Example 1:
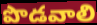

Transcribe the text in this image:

పొడవాలి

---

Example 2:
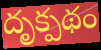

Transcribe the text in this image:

దృక్పథం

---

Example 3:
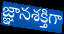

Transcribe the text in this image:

జ్ఞానశక్తిగా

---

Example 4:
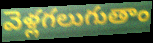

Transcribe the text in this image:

వెళ్లగలుగుతాం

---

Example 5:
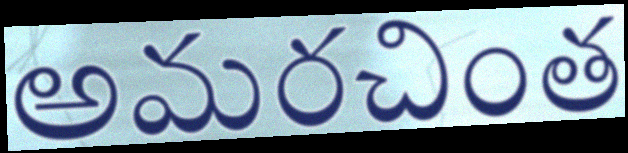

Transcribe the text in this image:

అమరచింత